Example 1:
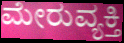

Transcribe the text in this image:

ಮೇರುವ್ಯಕ್ತಿ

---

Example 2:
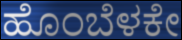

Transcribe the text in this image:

ಹೊಂಬೆಳಕೇ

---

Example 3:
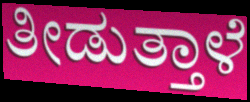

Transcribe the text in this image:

ತೀಡುತ್ತಾಳೆ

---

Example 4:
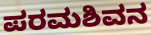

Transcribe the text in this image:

ಪರಮಶಿವನ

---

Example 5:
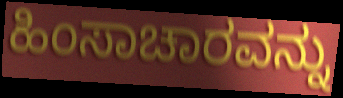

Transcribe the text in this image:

ಹಿಂಸಾಚಾರವನ್ನು